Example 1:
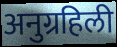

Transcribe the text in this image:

अनुग्रहिली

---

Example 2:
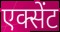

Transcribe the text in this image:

एक्सेंट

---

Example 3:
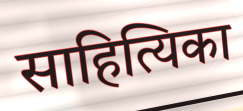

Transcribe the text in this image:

साहित्यिका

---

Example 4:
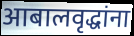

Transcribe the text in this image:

आबालवृद्धांना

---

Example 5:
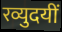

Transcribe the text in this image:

रव्युदयीं